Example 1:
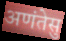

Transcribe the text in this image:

अणंतेसु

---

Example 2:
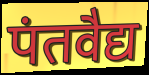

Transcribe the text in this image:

पंतवैद्य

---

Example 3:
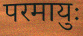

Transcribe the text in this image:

परमायुः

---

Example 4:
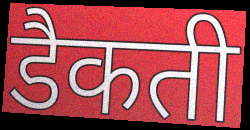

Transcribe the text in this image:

डैकती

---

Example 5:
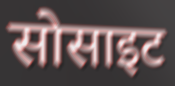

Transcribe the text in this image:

सोसाइट